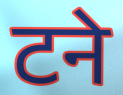
टने